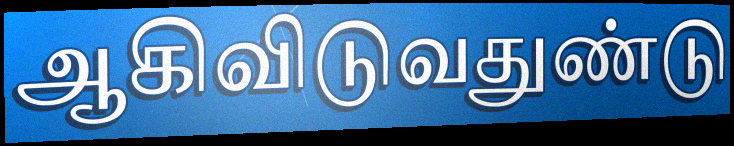
ஆகிவிடுவதுண்டு